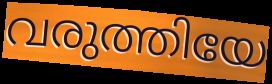
വരുത്തിയേ